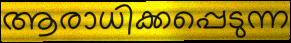
ആരാധിക്കപ്പെടുന്ന